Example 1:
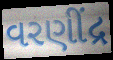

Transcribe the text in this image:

વરણીંદ્ર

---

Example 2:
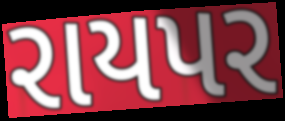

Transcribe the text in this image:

રાયપર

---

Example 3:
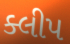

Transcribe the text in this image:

ક્લીપ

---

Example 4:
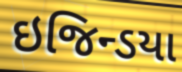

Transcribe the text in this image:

ઇજિન્ડયા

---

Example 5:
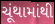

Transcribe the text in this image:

ચૂંથામાંથી